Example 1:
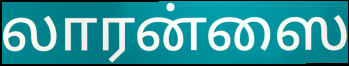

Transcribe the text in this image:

லாரன்ஸை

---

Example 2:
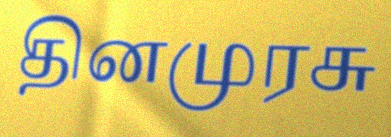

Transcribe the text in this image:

தினமுரசு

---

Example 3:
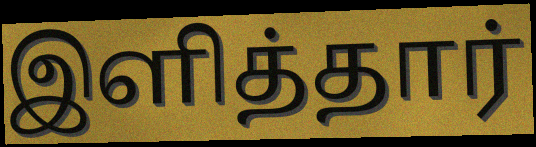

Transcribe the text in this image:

இளித்தார்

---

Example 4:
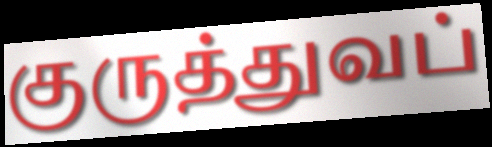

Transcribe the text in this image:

குருத்துவப்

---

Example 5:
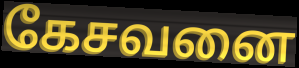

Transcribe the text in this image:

கேசவனை